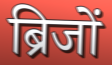
ब्रिजों